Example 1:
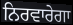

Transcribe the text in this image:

ਨਿਰਵਾਰੇਗਾ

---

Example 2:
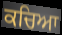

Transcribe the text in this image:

ਕਚਿਆ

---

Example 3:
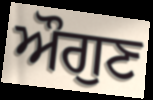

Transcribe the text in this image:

ਔਗੁਣ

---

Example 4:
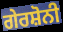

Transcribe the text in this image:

ਗੇਰਸ਼ੋਨੀ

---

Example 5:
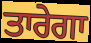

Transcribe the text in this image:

ਤਾਰੇਗਾ